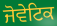
ਜੋਵੇਟਿਕ